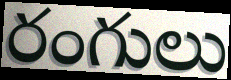
రంగులు